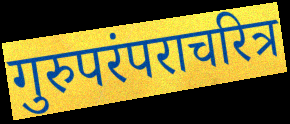
गुरुपरंपराचरित्र